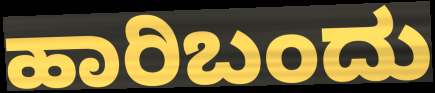
ಹಾರಿಬಂದು